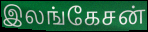
இலங்கேசன்